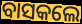
ବାସକଲେ